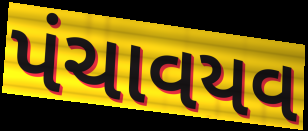
પંચાવયવ